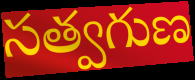
సత్వగుణ